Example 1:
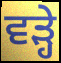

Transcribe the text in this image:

ਵੜ੍ਹੇ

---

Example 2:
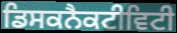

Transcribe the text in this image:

ਡਿਸਕਨੈਕਟੀਵਿਟੀ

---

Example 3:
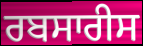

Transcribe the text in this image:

ਰਬਸਾਰੀਸ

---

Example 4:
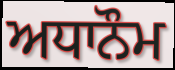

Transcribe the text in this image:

ਅਧਾਨੌਮ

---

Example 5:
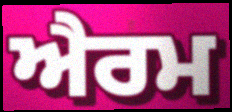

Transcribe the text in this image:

ਐਰਮ